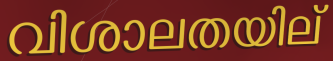
വിശാലതയില്